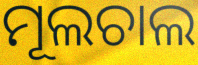
ମୂଲଚାଲ